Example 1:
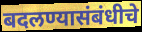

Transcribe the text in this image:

बदलण्यासंबंधीचे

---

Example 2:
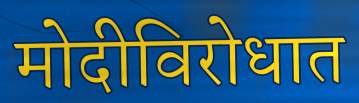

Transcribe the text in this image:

मोदीविरोधात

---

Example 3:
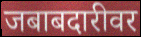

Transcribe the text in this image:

जबाबदारीवर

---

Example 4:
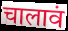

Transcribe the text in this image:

चालावं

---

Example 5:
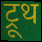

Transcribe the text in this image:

ट्रूथ